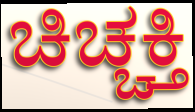
ಚಿಚ್ಚಕ್ತಿ